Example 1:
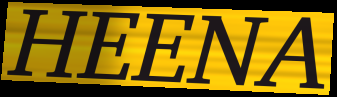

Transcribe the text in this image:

HEENA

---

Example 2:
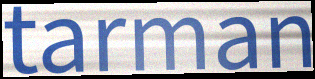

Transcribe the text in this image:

tarman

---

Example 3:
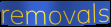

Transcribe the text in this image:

removals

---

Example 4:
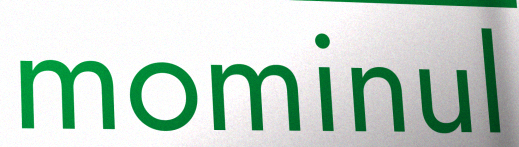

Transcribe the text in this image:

mominul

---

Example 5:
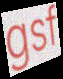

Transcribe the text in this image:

gsf